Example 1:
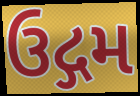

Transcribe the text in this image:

ઉદ્ગમ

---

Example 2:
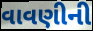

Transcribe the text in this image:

વાવણીની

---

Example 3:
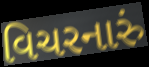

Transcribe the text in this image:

વિચરનારું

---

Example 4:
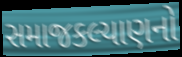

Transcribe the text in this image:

સમાજકલ્યાણનો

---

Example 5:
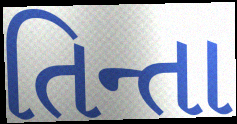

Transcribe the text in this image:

તિન્તા